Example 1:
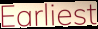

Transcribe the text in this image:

Earliest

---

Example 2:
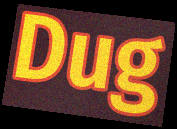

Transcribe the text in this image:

Dug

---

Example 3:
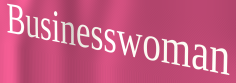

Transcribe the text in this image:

Businesswoman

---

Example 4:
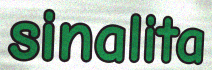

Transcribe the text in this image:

sinalita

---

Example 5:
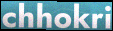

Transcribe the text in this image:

chhokri